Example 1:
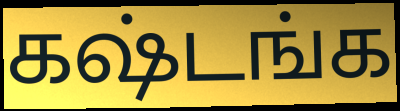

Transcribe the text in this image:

கஷ்டங்க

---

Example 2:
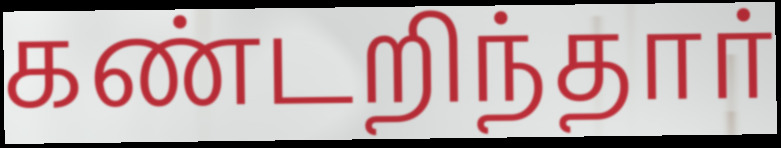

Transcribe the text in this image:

கண்டறிந்தார்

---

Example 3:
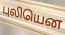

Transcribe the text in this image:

புலியென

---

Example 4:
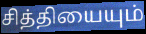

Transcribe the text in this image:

சித்தியையும்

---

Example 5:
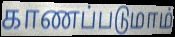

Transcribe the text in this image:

காணப்படுமாம்